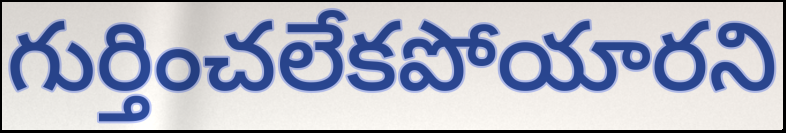
గుర్తించలేకపోయారని